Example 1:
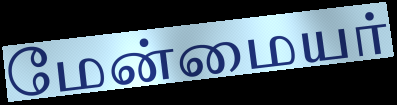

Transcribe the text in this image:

மேன்மையர்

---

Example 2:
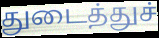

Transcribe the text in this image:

துடைத்துச்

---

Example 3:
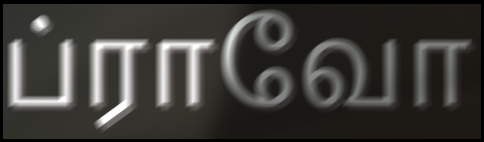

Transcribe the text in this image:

ப்ராவோ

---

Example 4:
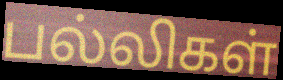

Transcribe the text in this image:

பல்லிகள்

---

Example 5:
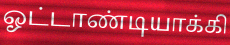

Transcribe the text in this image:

ஓட்டாண்டியாக்கி